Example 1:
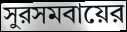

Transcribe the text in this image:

সুরসমবায়ের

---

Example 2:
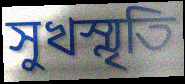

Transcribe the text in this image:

সুখস্মৃতি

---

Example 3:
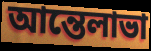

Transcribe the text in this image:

আন্তেলাভা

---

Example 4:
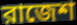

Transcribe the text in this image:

রাজেশ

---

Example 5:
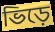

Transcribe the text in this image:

ভিড়ে